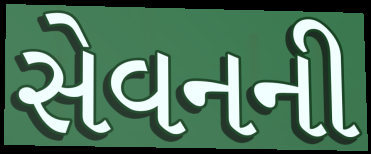
સેવનની